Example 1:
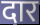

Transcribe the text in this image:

दार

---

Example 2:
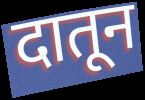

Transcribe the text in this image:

दातून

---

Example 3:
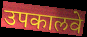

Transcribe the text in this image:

उपकालवे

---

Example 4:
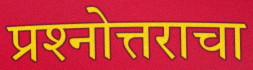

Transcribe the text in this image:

प्रश्‍नोत्तराचा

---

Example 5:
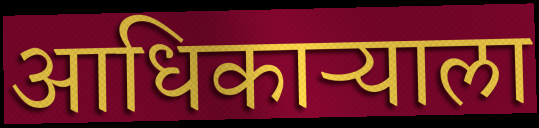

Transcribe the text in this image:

आधिकाऱ्याला